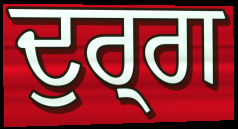
ਦੁਰ੍ਗ